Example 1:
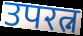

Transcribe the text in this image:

उपरत्न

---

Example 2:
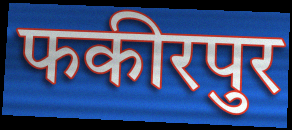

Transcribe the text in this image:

फकीरपुर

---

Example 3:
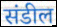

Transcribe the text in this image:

संडील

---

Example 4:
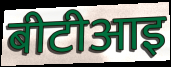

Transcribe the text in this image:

बीटीआइ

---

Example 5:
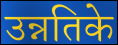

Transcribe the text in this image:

उन्नतिके